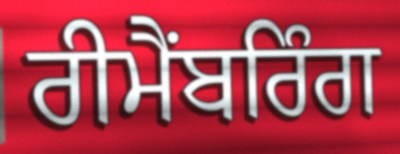
ਰੀਮੈਂਬਰਿੰਗ